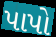
પાપો